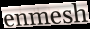
enmesh